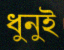
ধুনুই